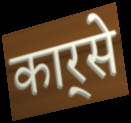
कार्से